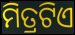
ମିତ୍ରଟିଏ